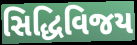
સિદ્ધિવિજય